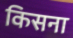
किसना